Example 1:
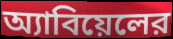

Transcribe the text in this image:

অ্যাবিয়েলের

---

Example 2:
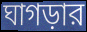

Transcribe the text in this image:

ঘাগড়ার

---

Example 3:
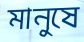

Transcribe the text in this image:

মানুষে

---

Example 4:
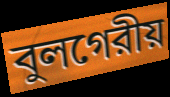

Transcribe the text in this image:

বুলগেরীয়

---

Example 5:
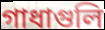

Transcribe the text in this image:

গাধাগুলি